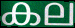
കല